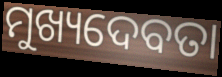
ମୁଖ୍ୟଦେବତା